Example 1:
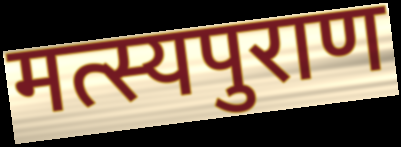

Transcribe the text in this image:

मत्स्यपुराण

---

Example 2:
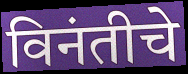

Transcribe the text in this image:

विनंतीचे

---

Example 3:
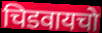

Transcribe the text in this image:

चिडवायचो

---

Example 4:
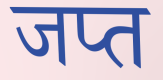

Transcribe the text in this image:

जप्त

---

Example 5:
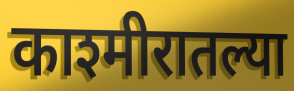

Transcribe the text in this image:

काश्मीरातल्या